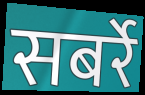
सबर्रे